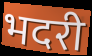
भदरी